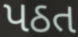
પઠત